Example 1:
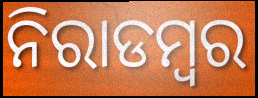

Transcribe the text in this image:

ନିରାଡମ୍ଵର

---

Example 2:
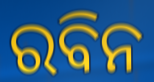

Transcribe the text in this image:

ରବିନ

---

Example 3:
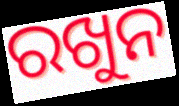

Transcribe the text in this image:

ରଖୁନ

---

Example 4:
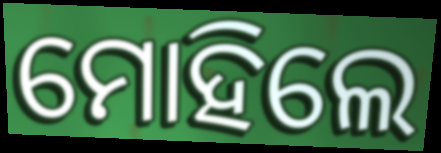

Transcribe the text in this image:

ମୋହିଲେ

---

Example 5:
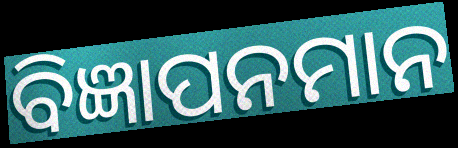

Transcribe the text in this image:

ବିଜ୍ଞାପନମାନ